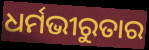
ଧର୍ମଭୀରୁତାର